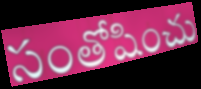
సంతోషించు